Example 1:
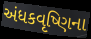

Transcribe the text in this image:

અંધકવૃષ્ણિના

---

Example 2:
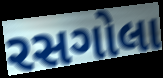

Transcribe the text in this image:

રસગોલા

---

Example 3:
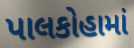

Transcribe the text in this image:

પાલકોહામાં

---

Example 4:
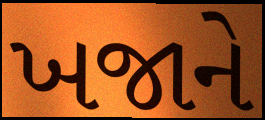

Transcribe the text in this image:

ખજાને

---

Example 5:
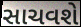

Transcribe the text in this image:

સાચવશે